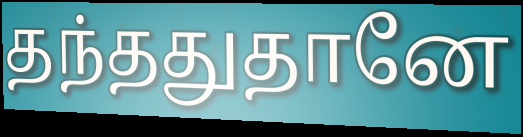
தந்ததுதானே